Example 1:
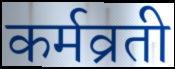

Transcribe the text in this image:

कर्मव्रती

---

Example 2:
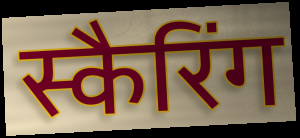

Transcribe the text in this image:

स्कैरिंग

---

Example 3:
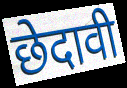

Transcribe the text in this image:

छेदावी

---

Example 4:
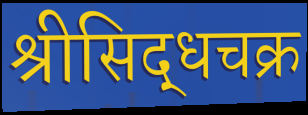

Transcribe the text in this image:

श्रीसिद्धचक्र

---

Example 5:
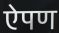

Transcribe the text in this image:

ऐपण